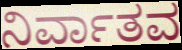
ನಿರ್ವಾತವ